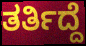
ತರ್ತಿದ್ದೆ